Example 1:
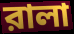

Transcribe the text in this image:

রালা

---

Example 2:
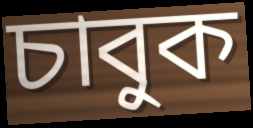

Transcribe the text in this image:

চাবুক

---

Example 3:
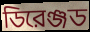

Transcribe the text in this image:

ডিরেঞ্জড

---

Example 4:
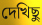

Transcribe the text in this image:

দেখিছু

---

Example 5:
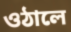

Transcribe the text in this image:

ওঠালে